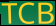
TCB